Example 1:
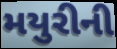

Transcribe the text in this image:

મયુરીની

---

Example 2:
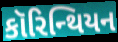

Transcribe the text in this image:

કૉરિન્થિયન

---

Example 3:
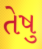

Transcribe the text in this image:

તેષુ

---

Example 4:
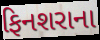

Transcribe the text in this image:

ફિનશરાના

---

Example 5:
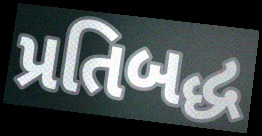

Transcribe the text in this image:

પ્રતિબદ્ધ